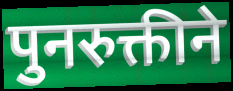
पुनरुक्तीने